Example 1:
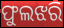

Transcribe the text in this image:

ଫୁଲଝରି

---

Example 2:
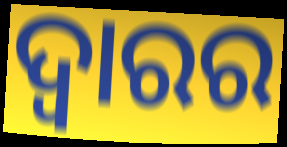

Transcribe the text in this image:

ଦ୍ୱାରର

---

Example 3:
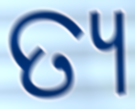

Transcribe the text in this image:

ତ୍ୟ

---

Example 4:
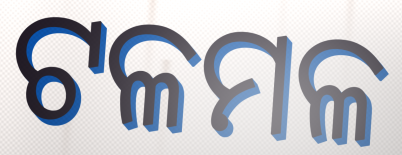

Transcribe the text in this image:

ଟଳମଳ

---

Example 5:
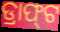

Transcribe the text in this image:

ଡ୍ରାଫ୍‌ଟ